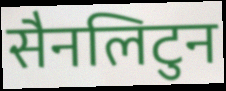
सैनलिटुन